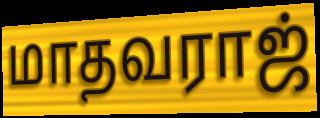
மாதவராஜ்